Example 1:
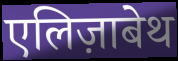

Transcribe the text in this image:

एलिज़ाबेथ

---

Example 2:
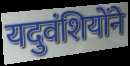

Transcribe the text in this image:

यदुवंशियोंने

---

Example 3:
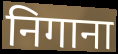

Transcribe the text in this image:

निगाना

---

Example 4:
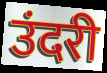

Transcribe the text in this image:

उंदरी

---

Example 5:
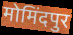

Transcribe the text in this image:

मोमिंदपुर